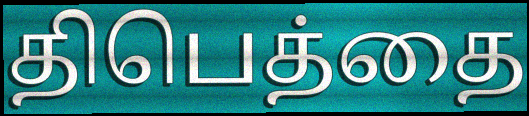
திபெத்தை